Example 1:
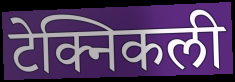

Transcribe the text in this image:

टेक्निकली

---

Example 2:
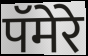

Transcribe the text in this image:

पॅमेरे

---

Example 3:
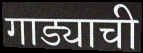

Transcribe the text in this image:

गाड्याची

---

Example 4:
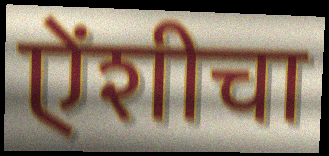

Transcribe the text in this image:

ऐंशीचा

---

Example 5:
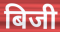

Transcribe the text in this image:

बिजी